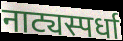
नाट्यस्पर्धा